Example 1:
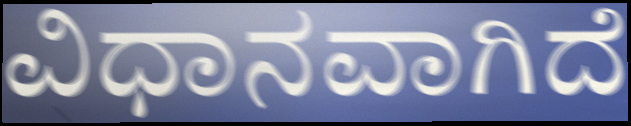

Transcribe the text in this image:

ವಿಧಾನವಾಗಿದೆ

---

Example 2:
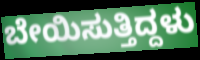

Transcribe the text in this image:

ಬೇಯಿಸುತ್ತಿದ್ದಳು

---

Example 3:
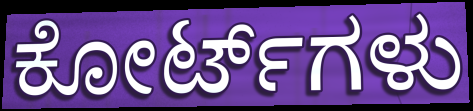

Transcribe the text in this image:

ಕೋರ್ಟ್‌ಗಳು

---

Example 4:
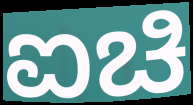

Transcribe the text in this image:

ಐಚಿ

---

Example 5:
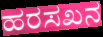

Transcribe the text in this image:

ಹರಸಖನ